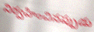
నిర్వహించినప్పుడు